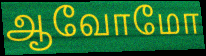
ஆவோமோ